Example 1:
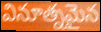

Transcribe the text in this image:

వినూత్నమైన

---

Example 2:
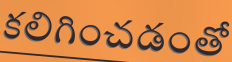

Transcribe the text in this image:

కలిగించడంతో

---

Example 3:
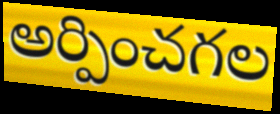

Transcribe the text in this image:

అర్పించగల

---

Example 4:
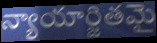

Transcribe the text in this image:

న్యాయార్జితమై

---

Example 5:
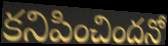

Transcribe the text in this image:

కనిపించిందనో